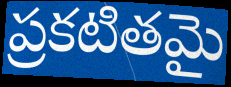
ప్రకటితమై